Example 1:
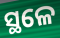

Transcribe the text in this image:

ସ୍ଥଳେ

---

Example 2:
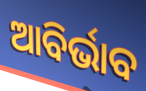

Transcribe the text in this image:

ଆବିର୍ଭାବ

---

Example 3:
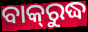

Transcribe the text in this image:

ବାକ୍‌ରୁଦ୍ଧ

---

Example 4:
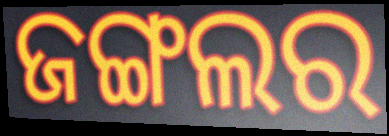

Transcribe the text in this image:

ଜଙ୍ଗଲର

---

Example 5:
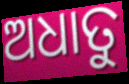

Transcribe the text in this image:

ଅଧାତୁ